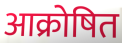
आक्रोषित